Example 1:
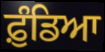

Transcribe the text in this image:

ਫ਼ੁੰਡਿਆ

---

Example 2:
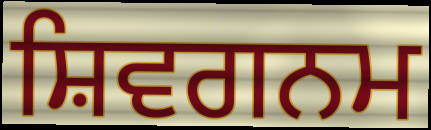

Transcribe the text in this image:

ਸ਼ਿਵਗਨਮ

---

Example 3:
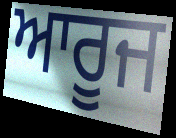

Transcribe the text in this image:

ਆਰੂਜ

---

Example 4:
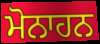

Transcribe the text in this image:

ਮੋਨਾਹਨ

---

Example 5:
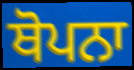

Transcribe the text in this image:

ਥੋਪਨਾ